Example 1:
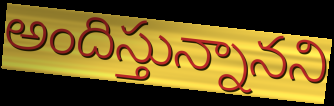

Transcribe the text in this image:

అందిస్తున్నానని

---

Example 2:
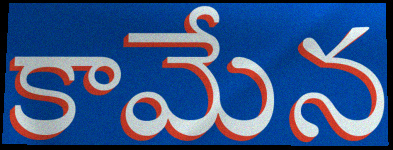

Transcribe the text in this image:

కామేన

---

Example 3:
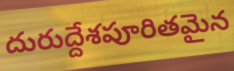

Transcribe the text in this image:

దురుద్దేశపూరితమైన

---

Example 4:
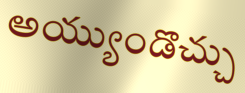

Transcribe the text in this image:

అయ్యుండొచ్చు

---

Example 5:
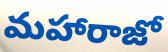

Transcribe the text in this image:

మహారాజో